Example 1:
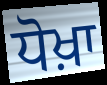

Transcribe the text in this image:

ਧੋਖ਼ਾ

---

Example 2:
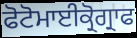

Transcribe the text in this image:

ਫੋਟੋਮਾਈਕ੍ਰੋਗ੍ਰਾਫ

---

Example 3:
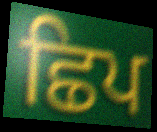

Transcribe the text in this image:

ਛਿਪ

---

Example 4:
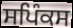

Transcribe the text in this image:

ਸਪਿੰਕਸ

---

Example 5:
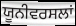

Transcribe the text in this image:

ਯੂਨੀਵਰਸਲਾਂ